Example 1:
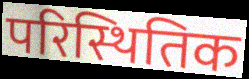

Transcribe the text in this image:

परिस्थितिक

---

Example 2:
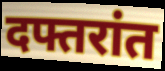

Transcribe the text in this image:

दफ्तरांत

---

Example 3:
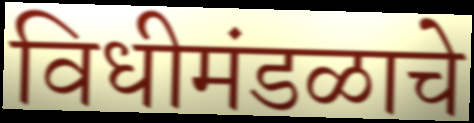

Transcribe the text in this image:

विधीमंडळाचे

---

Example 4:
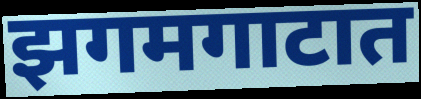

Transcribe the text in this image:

झगमगाटात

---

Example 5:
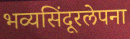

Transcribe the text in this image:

भव्यसिंदूरलेपना